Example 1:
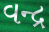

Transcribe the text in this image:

વન્દ્ર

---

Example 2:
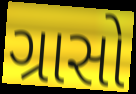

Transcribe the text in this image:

ગ્રાસો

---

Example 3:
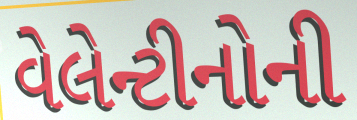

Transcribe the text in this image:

વેલેન્ટીનોની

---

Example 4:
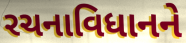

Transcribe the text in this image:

રચનાવિધાનને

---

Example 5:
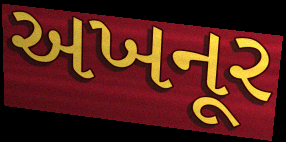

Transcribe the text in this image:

અખનૂર